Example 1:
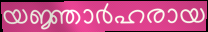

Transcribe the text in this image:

യജ്ഞാർഹരായ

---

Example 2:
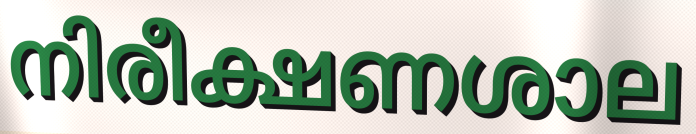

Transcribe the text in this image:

നിരീക്ഷണശാല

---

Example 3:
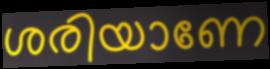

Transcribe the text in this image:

ശരിയാണേ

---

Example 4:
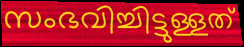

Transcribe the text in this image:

സംഭവിച്ചിട്ടുള്ളത്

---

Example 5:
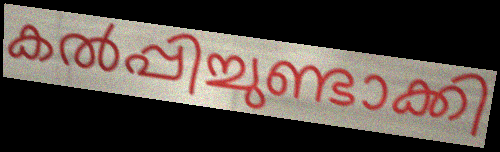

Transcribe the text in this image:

കൽപ്പിച്ചുണ്ടാക്കി